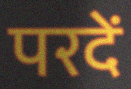
परदें